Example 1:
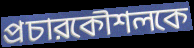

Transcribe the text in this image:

প্রচারকৌশলকে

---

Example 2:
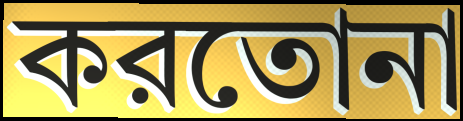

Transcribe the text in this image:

করতোনা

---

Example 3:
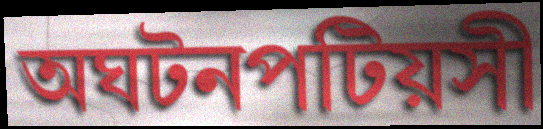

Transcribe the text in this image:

অঘটনপটিয়সী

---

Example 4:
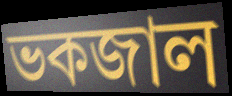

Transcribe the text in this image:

ভকজাল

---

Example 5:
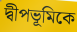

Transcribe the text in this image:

দ্বীপভূমিকে